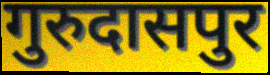
गुरुदासपुर